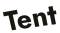
Tent